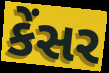
કેંસર